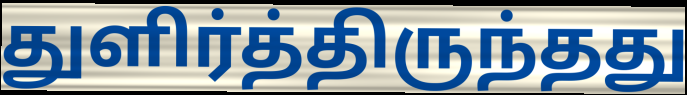
துளிர்த்திருந்தது